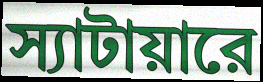
স্যাটায়ারে